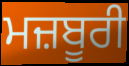
ਮਜ਼ਬੂਰੀ